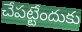
చేపట్టేందుకు